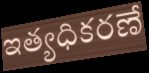
ఇత్యధికరణే